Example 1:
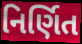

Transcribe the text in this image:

નિર્ણિત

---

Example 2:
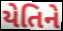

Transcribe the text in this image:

યેતિને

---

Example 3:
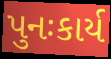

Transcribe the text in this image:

પુનઃકાર્ય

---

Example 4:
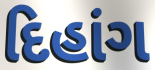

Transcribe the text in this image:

દિહાંગ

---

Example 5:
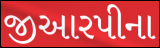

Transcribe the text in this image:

જીઆરપીના